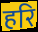
हरि